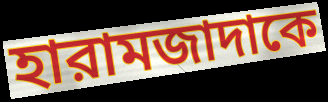
হারামজাদাকে